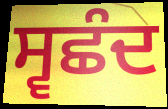
ਸ੍ਵਛੰਦ